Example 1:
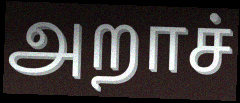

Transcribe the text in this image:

அறாச்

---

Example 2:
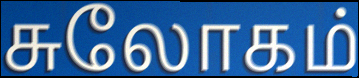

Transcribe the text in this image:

சுலோகம்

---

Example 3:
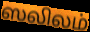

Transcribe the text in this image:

ஸலிலம்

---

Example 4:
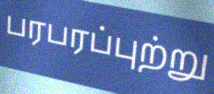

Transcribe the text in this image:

பரபரப்புற்று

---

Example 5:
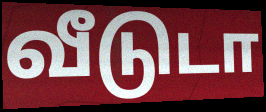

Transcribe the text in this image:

வீடுடா